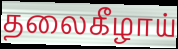
தலைகீழாய்